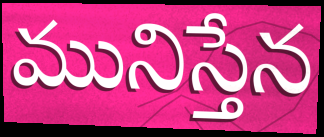
మునిస్తేన